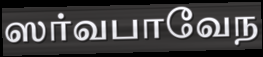
ஸர்வபாவேந